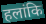
हलांकि